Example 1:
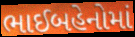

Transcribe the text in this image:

ભાઈબહેનોમાં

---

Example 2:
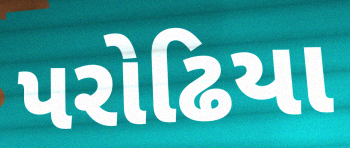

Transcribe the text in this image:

પરોઢિયા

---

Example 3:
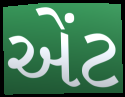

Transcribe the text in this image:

એંટ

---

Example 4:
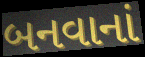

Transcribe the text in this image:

બનવાનાં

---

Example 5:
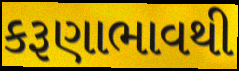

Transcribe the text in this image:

કરૂણાભાવથી